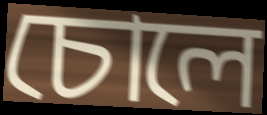
চোলে